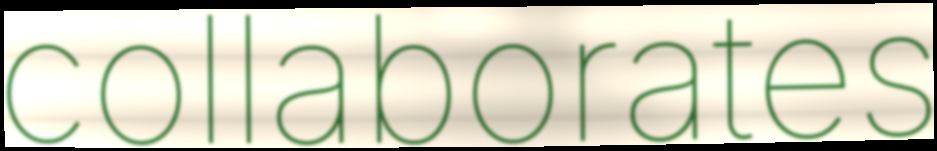
collaborates